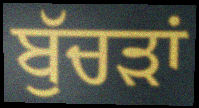
ਬੁੱਚੜਾਂ